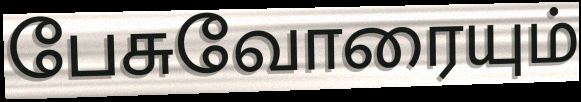
பேசுவோரையும்